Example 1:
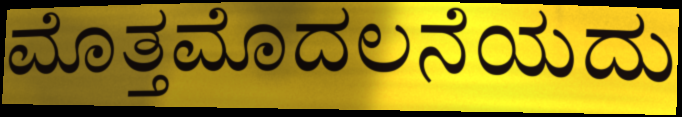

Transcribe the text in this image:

ಮೊತ್ತಮೊದಲನೆಯದು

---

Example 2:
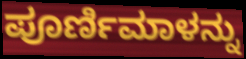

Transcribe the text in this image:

ಪೂರ್ಣಿಮಾಳನ್ನು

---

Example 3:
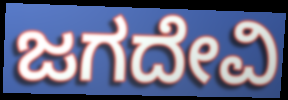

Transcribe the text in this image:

ಜಗದೇವಿ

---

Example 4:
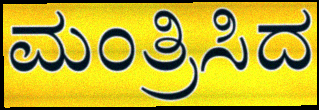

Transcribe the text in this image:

ಮಂತ್ರಿಸಿದ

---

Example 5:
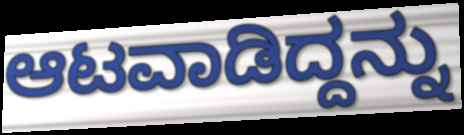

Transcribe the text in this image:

ಆಟವಾಡಿದ್ದನ್ನು